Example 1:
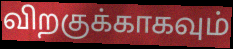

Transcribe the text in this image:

விறகுக்காகவும்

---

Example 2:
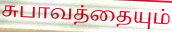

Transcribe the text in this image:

சுபாவத்தையும்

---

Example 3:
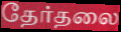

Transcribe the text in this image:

தேர்தலை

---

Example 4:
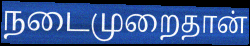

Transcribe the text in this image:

நடைமுறைதான்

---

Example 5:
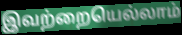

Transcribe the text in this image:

இவற்றையெல்லாம்